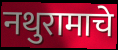
नथुरामाचे